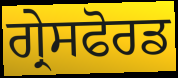
ਗ੍ਰੇਸਫੋਰਡ